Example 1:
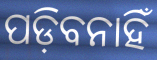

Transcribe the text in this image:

ପଡ଼ିବନାହିଁ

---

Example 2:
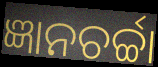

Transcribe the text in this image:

ଜ୍ଞାନଚର୍ଚ୍ଚା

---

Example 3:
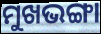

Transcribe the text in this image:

ମୁଖଭଙ୍ଗା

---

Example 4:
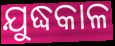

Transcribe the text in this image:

ଯୁଦ୍ଧକାଳ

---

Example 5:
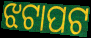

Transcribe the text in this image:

ଝଟାପଟ